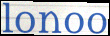
lonoo